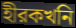
হীরকখনি